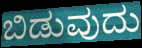
ಬಿಡುವುದು